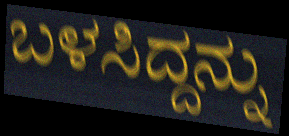
ಬಳಸಿದ್ದನ್ನು